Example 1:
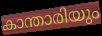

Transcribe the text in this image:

കാന്താരിയും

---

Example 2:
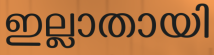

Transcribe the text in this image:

ഇല്ലാതായി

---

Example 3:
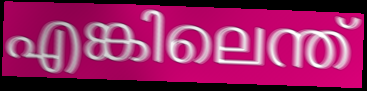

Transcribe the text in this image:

എങ്കിലെന്ത്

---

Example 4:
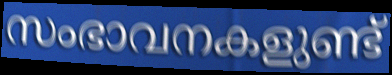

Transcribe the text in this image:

സംഭാവനകളുണ്ട്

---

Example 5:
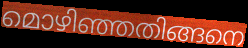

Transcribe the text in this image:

മൊഴിഞ്ഞതിങ്ങനെ